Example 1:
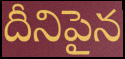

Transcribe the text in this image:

దీనిపైన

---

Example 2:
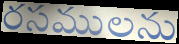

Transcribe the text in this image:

రసములను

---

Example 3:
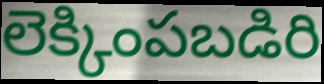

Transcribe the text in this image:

లెక్కింపబడిరి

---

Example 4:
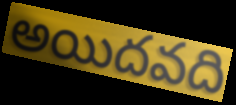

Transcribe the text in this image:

అయిదవది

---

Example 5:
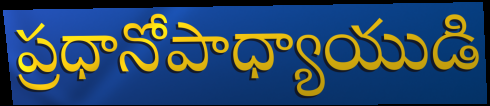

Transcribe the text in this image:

ప్రధానోపాధ్యాయుడి